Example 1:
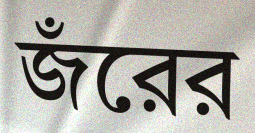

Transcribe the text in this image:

জঁরের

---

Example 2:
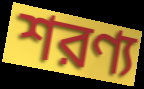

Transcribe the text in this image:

শরণ্য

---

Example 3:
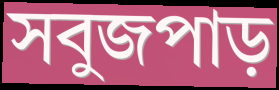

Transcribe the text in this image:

সবুজপাড়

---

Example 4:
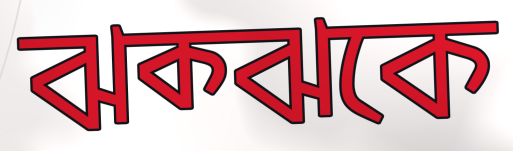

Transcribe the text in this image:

ঝক্ঝকে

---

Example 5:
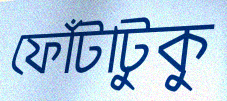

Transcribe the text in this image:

ফোঁটাটুকু